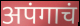
अपंगाचं